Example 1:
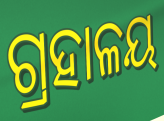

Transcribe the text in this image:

ଗ୍ରହାଳୟ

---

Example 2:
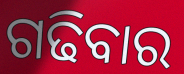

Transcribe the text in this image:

ଗଢିବାର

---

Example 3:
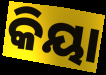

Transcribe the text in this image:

କିୟା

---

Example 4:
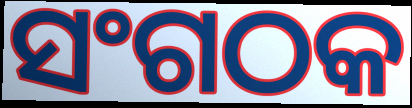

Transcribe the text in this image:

ସଂଗଠକ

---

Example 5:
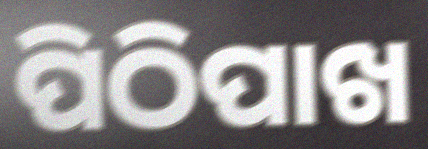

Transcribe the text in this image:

ପିଠିପାଖ